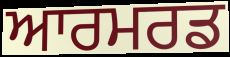
ਆਰਮਰਡ